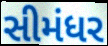
સીમંધર